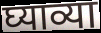
घ्याव्या